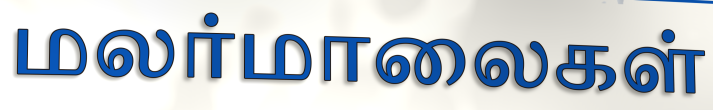
மலர்மாலைகள்